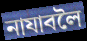
নাযাবলৈ